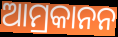
ଆମ୍ରକାନନ